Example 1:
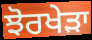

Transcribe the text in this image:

ਝੋਰਖੇੜਾ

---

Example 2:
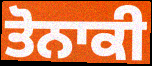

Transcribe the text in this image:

ਤੋਨਾਕੀ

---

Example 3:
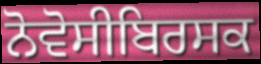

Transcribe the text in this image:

ਨੋਵੋਸੀਬਿਰਸਕ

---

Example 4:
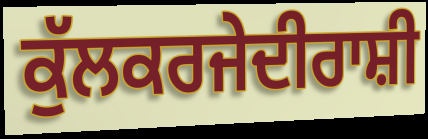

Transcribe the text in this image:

ਕੁੱਲਕਰਜੇਦੀਰਾਸ਼ੀ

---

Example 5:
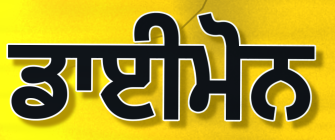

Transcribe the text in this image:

ਡਾਈਮੋਨ